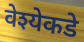
वेश्येकडे